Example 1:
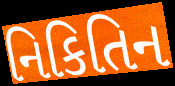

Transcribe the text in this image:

નિકિતિન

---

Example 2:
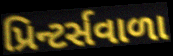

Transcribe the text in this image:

પ્રિન્ટર્સવાળા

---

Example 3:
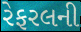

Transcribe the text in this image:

રેફરલની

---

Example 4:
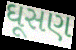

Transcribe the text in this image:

ઘૂસણ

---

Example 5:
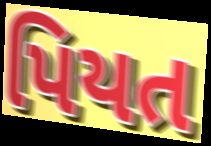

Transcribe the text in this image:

પિયત